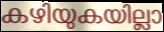
കഴിയുകയില്ലാ